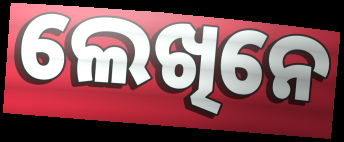
ଲେଖିନେ